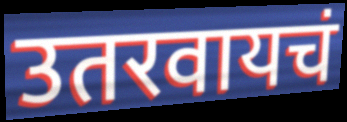
उतरवायचं